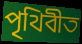
পৃথিবীত